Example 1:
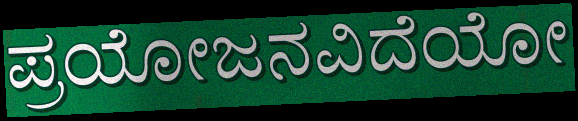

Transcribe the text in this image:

ಪ್ರಯೋಜನವಿದೆಯೋ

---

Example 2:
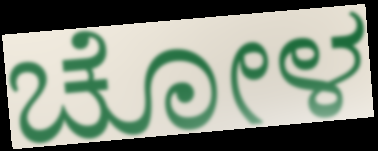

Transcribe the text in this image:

ಚೋಳ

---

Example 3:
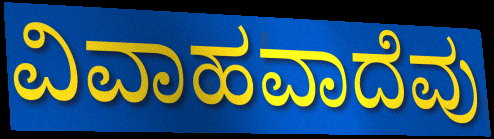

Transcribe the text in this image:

ವಿವಾಹವಾದೆವು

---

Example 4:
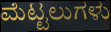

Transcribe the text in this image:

ಮೆಟ್ಟಲುಗಳು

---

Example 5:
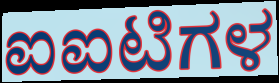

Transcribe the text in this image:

ಐಐಟಿಗಳ